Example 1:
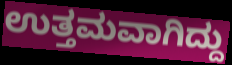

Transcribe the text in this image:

ಉತ್ತಮವಾಗಿದ್ದು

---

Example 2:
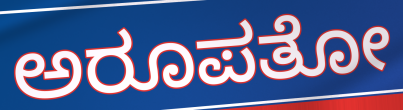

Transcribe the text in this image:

ಅರೂಪತೋ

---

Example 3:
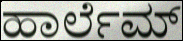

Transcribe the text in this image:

ಹಾರ್ಲೆಮ್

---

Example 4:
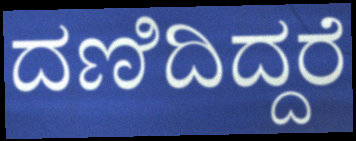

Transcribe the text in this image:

ದಣಿದಿದ್ದರೆ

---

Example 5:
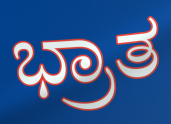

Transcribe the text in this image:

ಭ್ರಾತ